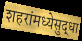
शहरांमध्येसुद्धा